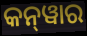
କନ୍‍ୱାର